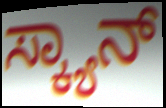
ಸ್ಕ್ಯಾನ್